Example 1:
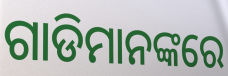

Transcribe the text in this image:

ଗାଡିମାନଙ୍କରେ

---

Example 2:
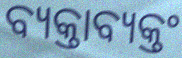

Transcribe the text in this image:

ବ୍ୟକ୍ତାବ୍ୟକ୍ତଂ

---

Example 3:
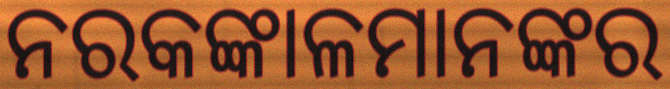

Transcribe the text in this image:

ନରକଙ୍କାଳମାନଙ୍କର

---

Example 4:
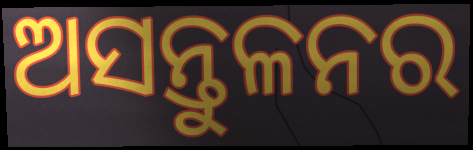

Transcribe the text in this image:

ଅସନ୍ତୁଳନର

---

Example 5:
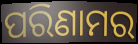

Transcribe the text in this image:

ପରିଣାମର